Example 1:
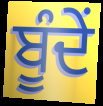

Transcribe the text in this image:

ਬੂੰਦੇਂ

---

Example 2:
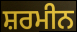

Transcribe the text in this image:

ਸ਼ਰਮੀਨ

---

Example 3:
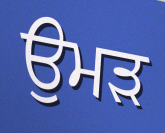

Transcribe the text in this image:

ਉਮੜ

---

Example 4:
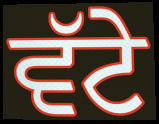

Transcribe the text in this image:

ਵੱਟੇ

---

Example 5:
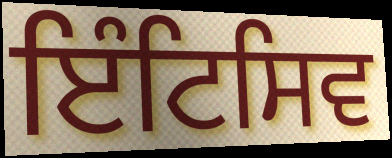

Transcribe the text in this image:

ਇੰਟਿਸਿਵ